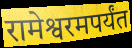
रामेश्वरमपर्यंत